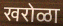
खरोळा